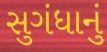
સુગંધાનું